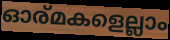
ഓര്മകളെല്ലാം